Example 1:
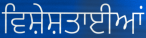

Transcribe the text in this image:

ਵਿਸ਼ੇਸ਼ਤਾਈਆਂ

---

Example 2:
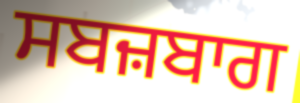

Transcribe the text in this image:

ਸਬਜ਼ਬਾਗ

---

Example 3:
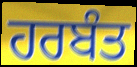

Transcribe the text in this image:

ਹਰਬੰਤ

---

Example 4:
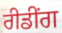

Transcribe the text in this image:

ਰੀਡੀਂਗ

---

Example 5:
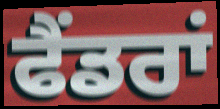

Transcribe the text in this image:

ਫੈਂਡਰਾਂ